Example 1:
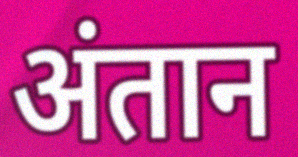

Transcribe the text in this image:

अंतान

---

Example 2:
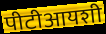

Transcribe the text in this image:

पीटीआयशी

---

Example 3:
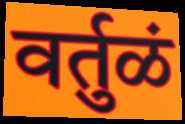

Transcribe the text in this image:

वर्तुळं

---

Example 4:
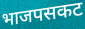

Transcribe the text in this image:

भाजपसकट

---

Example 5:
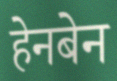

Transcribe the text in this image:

हेनबेन